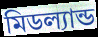
মিডল্যান্ড